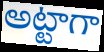
అట్టాగా